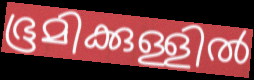
ഭൂമിക്കുള്ളിൽ